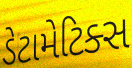
ડેટામેટિક્સ